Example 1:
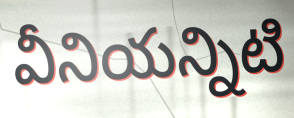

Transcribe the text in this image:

వీనియన్నిటి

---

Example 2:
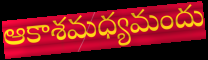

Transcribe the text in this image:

ఆకాశమధ్యమందు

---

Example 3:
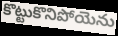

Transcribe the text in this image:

కొట్టుకొనిపోయెను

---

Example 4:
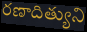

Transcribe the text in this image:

రణాదిత్యుని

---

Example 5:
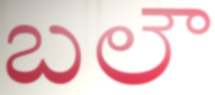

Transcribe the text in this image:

బలౌ